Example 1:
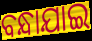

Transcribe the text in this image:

ବନ୍ଧାଯାଇ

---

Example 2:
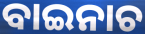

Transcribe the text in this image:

ବାଇନାଚ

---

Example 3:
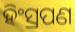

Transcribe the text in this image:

ହିଂସ୍ରପଣ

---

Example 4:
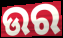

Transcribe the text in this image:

ଉର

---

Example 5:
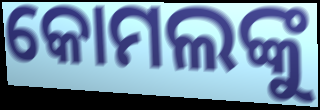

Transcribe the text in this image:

କୋମଲଙ୍କୁ